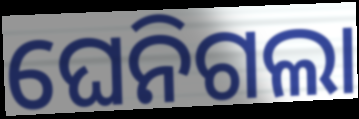
ଘେନିଗଲା